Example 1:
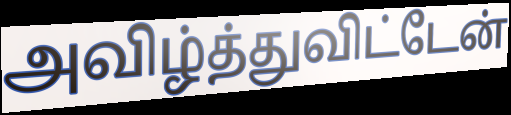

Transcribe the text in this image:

அவிழ்த்துவிட்டேன்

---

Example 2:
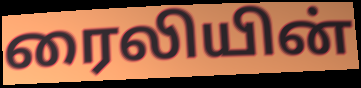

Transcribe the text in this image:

ரைலியின்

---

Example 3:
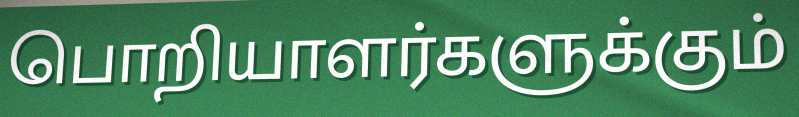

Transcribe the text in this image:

பொறியாளர்களுக்கும்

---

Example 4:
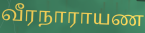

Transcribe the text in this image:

வீரநாராயண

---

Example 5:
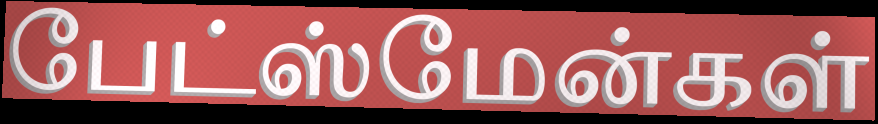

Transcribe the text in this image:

பேட்ஸ்மேன்கள்